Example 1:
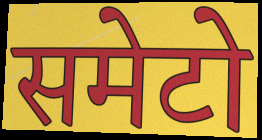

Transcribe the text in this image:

समेटो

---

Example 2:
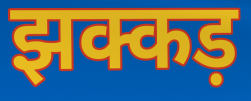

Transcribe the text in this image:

झक्कड़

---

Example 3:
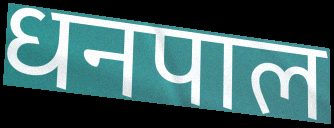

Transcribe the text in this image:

धनपाल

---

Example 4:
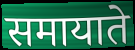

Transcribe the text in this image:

समायाते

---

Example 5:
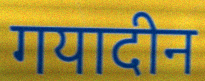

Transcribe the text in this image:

गयादीन